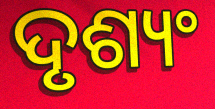
ଦୃଶ୍ୟଂ